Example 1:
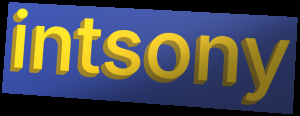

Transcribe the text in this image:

intsony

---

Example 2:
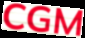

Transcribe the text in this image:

CGM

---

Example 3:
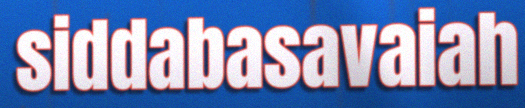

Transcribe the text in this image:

siddabasavaiah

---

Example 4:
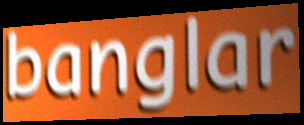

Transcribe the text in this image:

banglar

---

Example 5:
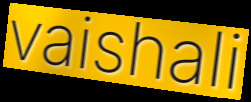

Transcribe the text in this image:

vaishali